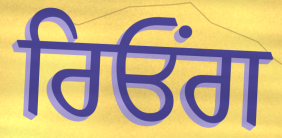
ਰਿਓਂਗ